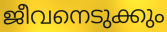
ജീവനെടുക്കും